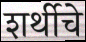
शर्थीचे